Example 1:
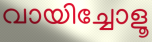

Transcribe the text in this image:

വായിച്ചോളൂ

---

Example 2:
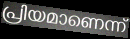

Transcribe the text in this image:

പ്രിയമാണെന്ന്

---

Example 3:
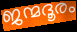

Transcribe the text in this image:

ജന്മദൂരം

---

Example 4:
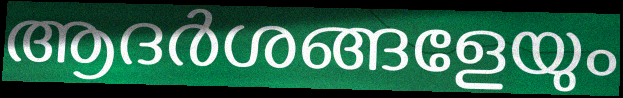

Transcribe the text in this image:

ആദർശങ്ങളേയും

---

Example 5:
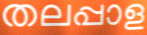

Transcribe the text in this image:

തലപ്പാള